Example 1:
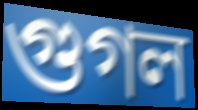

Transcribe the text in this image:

গুগল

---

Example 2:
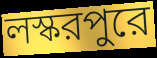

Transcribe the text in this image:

লস্করপুরে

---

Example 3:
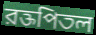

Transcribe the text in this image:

রক্তপিতল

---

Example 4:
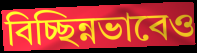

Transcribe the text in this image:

বিচ্ছিন্নভাবেও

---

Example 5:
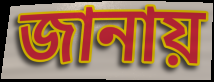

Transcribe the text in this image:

জানায়